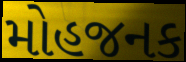
મોહજનક